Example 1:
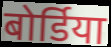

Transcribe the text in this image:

बोर्डिया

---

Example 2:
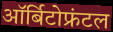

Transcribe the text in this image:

ऑर्बिटोफ्रंटल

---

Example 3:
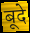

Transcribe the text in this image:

बूदे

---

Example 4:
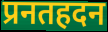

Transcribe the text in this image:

प्रनतहदन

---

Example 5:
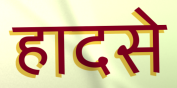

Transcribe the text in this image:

हादसे